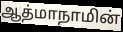
ஆத்மாநாமின்